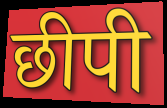
छीपी